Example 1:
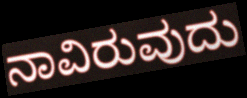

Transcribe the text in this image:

ನಾವಿರುವುದು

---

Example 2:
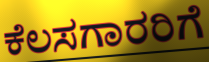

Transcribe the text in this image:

ಕೆಲಸಗಾರರಿಗೆ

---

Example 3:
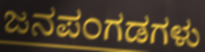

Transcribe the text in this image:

ಜನಪಂಗಡಗಳು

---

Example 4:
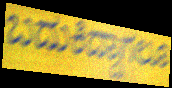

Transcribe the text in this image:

ಬದುಕಿದ್ದಾಗಲೂ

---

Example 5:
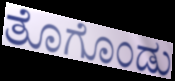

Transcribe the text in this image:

ತೊಗೊಂಡು